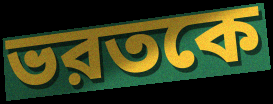
ভরতকে